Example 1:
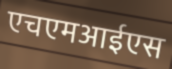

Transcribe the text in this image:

एचएमआईएस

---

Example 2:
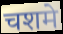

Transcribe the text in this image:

चशमे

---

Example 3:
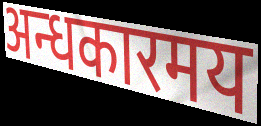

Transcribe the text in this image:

अन्धकारमय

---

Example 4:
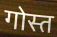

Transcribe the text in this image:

गोस्त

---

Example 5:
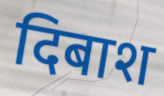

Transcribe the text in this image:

दिबाश